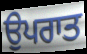
ਉਪਰਾਤ